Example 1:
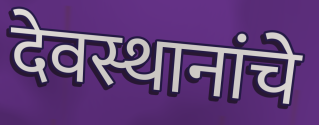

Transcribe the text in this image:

देवस्थानांचे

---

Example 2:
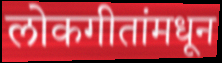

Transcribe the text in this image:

लोकगीतांमधून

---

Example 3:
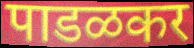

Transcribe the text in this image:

पाडळकर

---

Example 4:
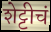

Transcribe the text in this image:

शेट्टीचं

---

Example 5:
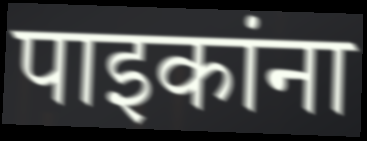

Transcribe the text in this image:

पाइकांना